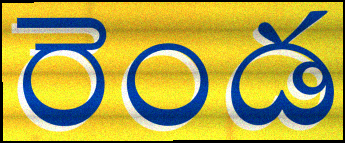
రెండ